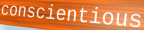
conscientious